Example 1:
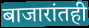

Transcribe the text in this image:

बाजारांतही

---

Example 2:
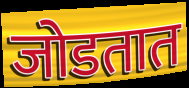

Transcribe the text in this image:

जोडतात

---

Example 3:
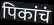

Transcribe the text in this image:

पिकांचं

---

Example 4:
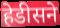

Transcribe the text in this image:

हेडीसने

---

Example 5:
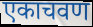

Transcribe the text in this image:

एकाचवण